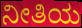
ನೀತಿಯ